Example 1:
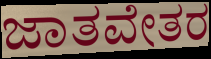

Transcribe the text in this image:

ಜಾತವೇತರ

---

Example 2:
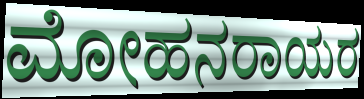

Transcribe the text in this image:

ಮೋಹನರಾಯರ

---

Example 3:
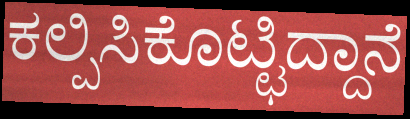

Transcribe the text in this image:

ಕಲ್ಪಿಸಿಕೊಟ್ಟಿದ್ದಾನೆ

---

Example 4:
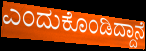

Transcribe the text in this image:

ಎಂದುಕೊಂಡಿದ್ದಾನೆ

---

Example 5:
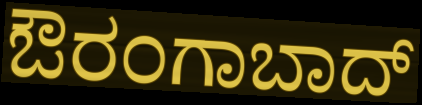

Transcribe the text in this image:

ಔರಂಗಾಬಾದ್